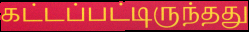
கட்டப்பட்டிருந்தது